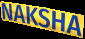
NAKSHA